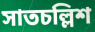
সাতচল্লিশ